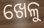
ଖେଳୁ